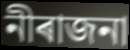
নীৰাজনা